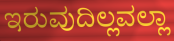
ಇರುವುದಿಲ್ಲವಲ್ಲಾ